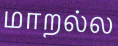
மாறல்ல